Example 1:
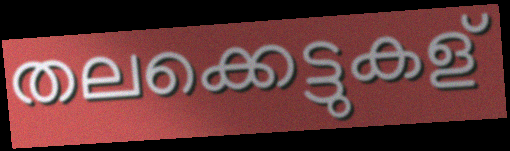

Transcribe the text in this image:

തലക്കെട്ടുകള്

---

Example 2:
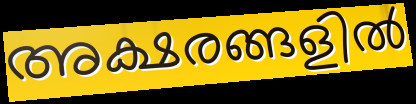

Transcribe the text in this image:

അക്ഷരങ്ങളിൽ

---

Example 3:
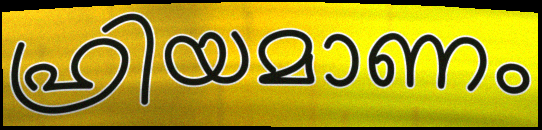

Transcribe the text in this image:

ഹ്രിയമാണം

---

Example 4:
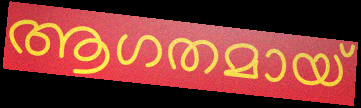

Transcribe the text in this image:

ആഗതമായ്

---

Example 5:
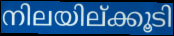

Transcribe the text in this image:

നിലയില്ക്കൂടി